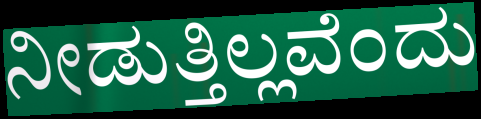
ನೀಡುತ್ತಿಲ್ಲವೆಂದು